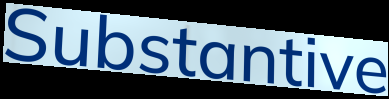
Substantive